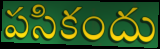
పసికందు